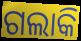
ଗଲାକି